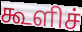
கூளிச்